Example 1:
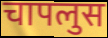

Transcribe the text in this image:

चापलुस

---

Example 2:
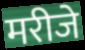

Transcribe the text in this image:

मरीजे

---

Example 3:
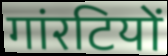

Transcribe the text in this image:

गांरटियों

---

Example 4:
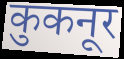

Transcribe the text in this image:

कुकनूर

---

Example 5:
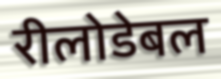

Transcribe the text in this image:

रीलोडेबल